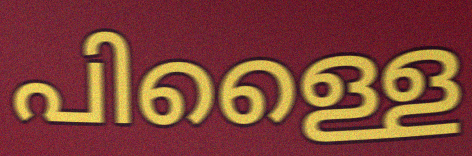
പിള്ളൈ